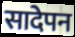
सादेपन